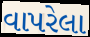
વાપરેલા